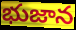
భుజాన